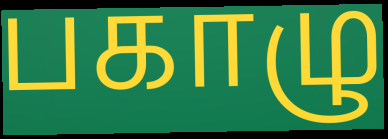
பகாழு